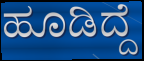
ಹೂಡಿದ್ದೆ